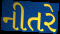
નીતરે